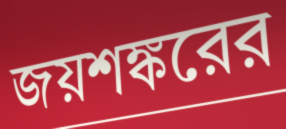
জয়শঙ্করের